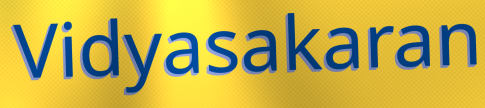
Vidyasakaran